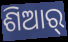
ଶିଆର୍